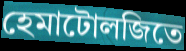
হেমাটোলজিতে